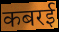
कबरई